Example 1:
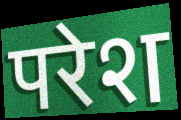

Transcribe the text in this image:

परेश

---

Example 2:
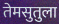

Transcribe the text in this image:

तेमसुतुला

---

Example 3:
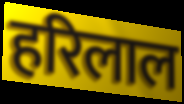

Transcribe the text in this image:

हरिलाल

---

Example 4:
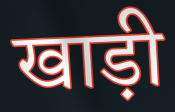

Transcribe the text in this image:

खाड़ी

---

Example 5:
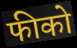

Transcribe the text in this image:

फीको